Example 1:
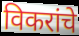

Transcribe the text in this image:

विकरांचे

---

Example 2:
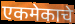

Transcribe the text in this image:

एकमेकाचे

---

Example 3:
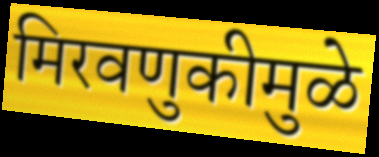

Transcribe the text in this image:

मिरवणुकीमुळे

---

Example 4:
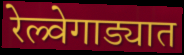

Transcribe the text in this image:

रेल्वेगाड्यात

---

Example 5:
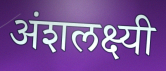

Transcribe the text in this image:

अंशलक्ष्यी